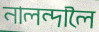
নালন্দালৈ